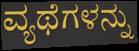
ವ್ಯಥೆಗಳನ್ನು